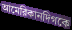
আমেরিকানদিগকে